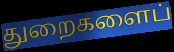
துறைகளைப்